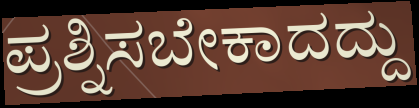
ಪ್ರಶ್ನಿಸಬೇಕಾದದ್ದು